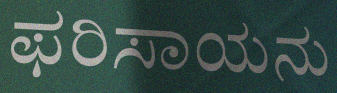
ಫರಿಸಾಯನು